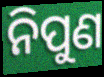
ନିପୁଣ